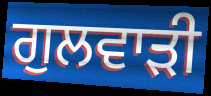
ਗੁਲਵਾੜੀ